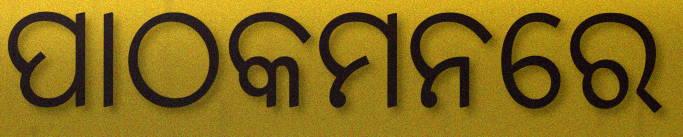
ପାଠକମନରେ